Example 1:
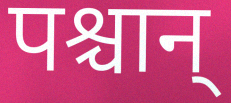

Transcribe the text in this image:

पश्चान्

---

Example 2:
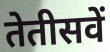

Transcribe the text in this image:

तेतीसवें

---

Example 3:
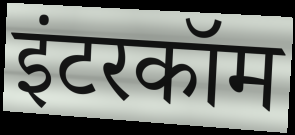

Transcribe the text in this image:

इंटरकॉम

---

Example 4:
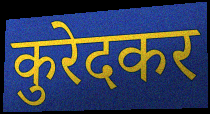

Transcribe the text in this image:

कुरेदकर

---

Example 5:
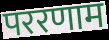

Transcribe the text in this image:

पररणाम